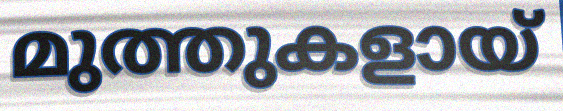
മുത്തുകളായ്